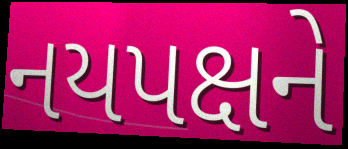
નયપક્ષને